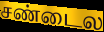
சண்டைல